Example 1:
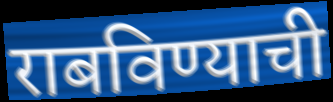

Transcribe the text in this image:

राबविण्याची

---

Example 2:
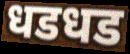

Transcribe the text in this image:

धडधड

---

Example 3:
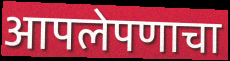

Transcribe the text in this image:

आपलेपणाचा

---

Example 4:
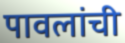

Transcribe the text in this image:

पावलांची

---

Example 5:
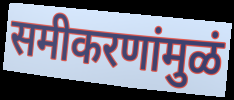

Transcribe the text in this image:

समीकरणांमुळं